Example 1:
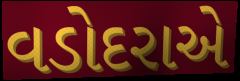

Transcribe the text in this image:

વડોદરાએ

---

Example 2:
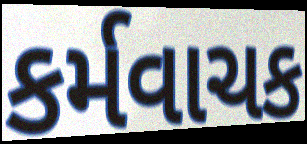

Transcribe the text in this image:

કર્મવાચક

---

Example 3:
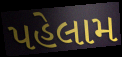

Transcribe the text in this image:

પહેલામ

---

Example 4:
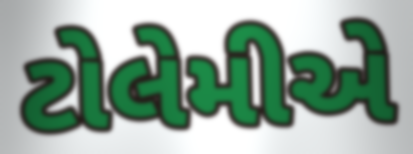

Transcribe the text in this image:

ટોલેમીએ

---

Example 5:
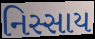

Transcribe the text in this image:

નિસ્સાય